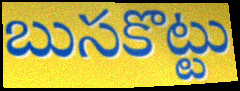
బుసకొట్టు